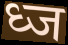
ध्ज